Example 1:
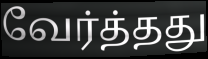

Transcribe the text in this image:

வேர்த்தது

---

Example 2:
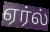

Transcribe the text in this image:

ஏர்ல்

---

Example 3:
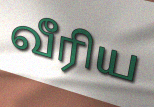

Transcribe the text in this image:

வீரிய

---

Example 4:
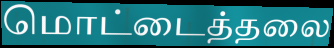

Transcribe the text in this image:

மொட்டைத்தலை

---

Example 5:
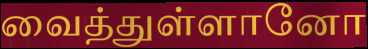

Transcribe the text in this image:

வைத்துள்ளானோ